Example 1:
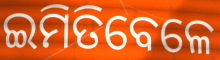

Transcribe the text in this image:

ଇମିତିବେଳେ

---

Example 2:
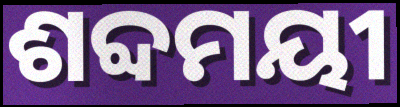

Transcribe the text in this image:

ଶବ୍ଦମୟୀ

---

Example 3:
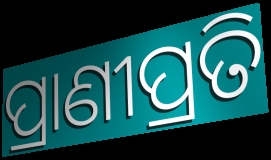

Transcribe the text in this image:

ପ୍ରାଣୀପ୍ରତି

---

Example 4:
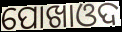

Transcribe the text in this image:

ପୋଖାଓଦ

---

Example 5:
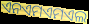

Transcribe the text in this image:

ଏନଏମଏମଏଲ